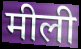
मीली